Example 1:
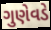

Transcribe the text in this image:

ગુણેવડે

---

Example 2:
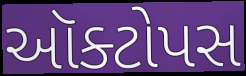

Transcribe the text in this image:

ઑક્ટોપસ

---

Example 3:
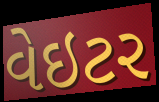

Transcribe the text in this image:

વેઇટર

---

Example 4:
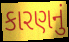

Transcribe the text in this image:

કારણનું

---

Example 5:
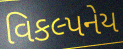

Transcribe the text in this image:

વિકલ્પનેય